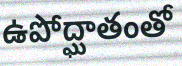
ఉపోద్ఘాతంతో